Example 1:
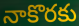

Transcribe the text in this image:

నాకొరకు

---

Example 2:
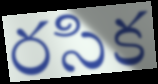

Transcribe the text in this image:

రసిక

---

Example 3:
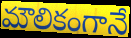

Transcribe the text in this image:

మౌలికంగానే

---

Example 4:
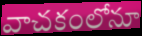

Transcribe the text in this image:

వాచకంలోనూ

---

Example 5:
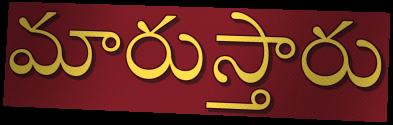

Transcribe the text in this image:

మారుస్తారు